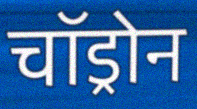
चॉड्रोन